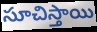
సూచిస్తాయి